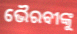
ଭୈରବୀଙ୍କୁ